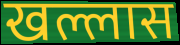
खल्लास